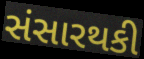
સંસારથકી